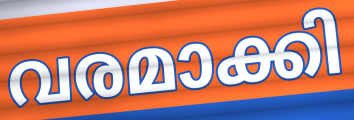
വരമാക്കി